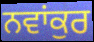
ਨਵਾਂਕੁਰ